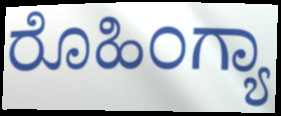
ರೊಹಿಂಗ್ಯಾ